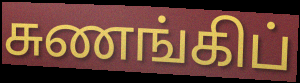
சுணங்கிப்